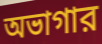
অভাগার